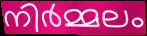
നിർമ്മലം